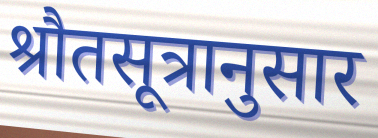
श्रौतसूत्रानुसार